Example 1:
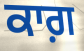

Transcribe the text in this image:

ਕਾਗ਼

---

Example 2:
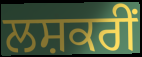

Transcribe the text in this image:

ਲਸ਼ਕਰੀਂ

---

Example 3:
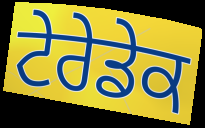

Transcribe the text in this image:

ਟੇਰੇਡੇਕ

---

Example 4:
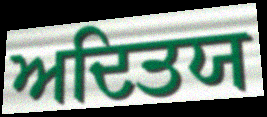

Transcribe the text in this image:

ਅਦਿਤਯ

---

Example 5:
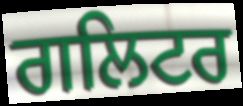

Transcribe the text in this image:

ਗਲਿਟਰ